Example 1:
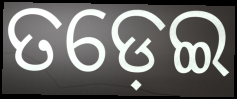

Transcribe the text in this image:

ତଡ଼େଇ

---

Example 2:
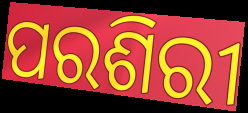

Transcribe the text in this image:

ପରଶିରୀ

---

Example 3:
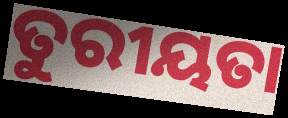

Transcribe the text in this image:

ତୁରୀୟତା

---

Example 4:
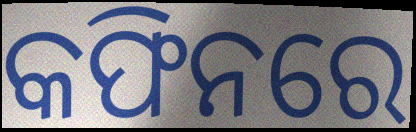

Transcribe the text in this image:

କଫିନରେ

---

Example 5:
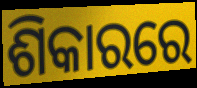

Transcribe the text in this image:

ଶିକାରରେ